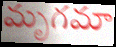
మృగమా